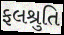
ફલશ્રુતિ